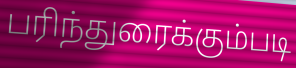
பரிந்துரைக்கும்படி